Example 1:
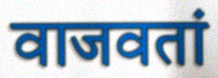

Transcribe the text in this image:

वाजवतां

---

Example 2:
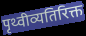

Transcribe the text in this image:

पृथ्वीव्यतिरिक्त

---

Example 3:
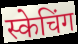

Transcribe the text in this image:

स्केचिंग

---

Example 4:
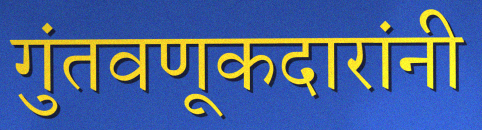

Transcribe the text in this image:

गुंतवणूकदारांनी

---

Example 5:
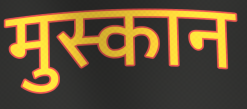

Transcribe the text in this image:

मुस्कान